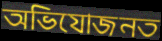
অভিযোজনত